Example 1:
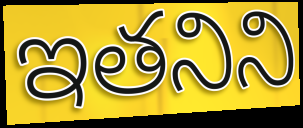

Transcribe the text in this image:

ఇతనిని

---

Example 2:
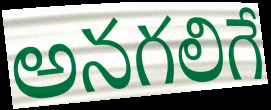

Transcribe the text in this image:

అనగలిగే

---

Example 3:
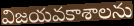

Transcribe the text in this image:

విజయవకాశాలను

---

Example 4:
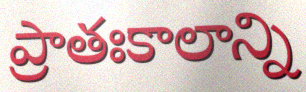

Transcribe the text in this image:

ప్రాతఃకాలాన్ని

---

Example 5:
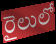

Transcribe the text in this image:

రైలులో